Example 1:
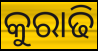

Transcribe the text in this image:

କୁରାଢି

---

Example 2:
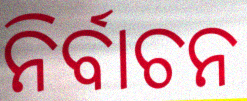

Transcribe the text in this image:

ନିର୍ବାଚନ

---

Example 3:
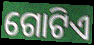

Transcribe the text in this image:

ଗୋଟିଏ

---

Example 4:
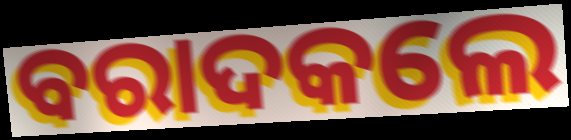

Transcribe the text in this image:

ବରାଦକଲେ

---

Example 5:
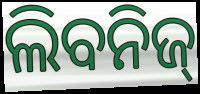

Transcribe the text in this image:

ଲିବନିଜ୍